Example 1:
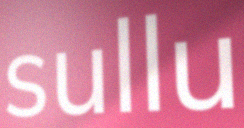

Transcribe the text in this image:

sullu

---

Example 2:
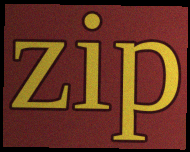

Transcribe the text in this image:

zip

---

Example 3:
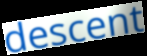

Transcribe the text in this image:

descent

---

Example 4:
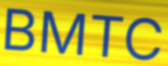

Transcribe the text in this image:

BMTC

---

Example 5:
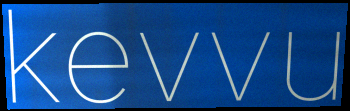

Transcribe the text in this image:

kevvu